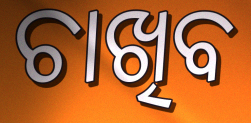
ଚାଖିବ